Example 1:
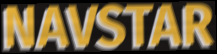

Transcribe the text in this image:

NAVSTAR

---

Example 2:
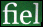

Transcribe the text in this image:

fiel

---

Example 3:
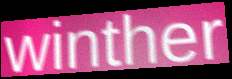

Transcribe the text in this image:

winther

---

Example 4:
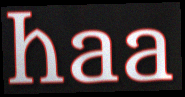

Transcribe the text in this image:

haa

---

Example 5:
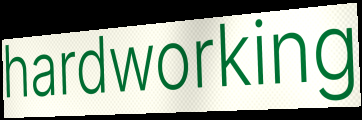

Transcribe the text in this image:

hardworking